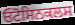
ਓਟੋਸਿਨਕਲਸ